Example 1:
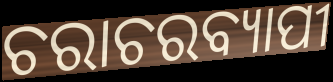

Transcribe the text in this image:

ଚରାଚରବ୍ୟାପୀ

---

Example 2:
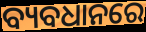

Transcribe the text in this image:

ବ୍ୟବଧାନରେ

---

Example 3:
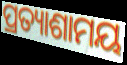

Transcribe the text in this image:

ପ୍ରତ୍ୟାଶାମୟ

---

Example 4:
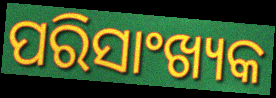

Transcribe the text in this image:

ପରିସାଂଖ୍ୟକ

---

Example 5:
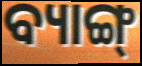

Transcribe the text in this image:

ବ୍ୟାଙ୍ଗ୍